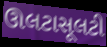
ઊલટાસૂલટી